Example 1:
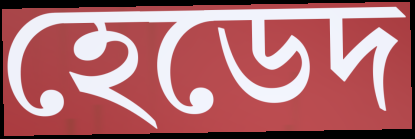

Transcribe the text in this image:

হেডেদ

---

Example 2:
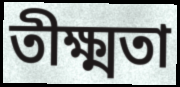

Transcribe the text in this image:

তীক্ষ্মতা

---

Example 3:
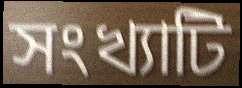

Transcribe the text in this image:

সংখ্যাটি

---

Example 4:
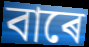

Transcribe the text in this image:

বাৰে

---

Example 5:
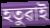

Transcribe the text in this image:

হতুৱাই